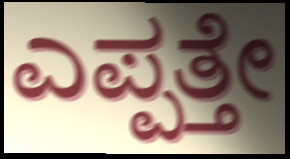
ಎಪ್ಪತ್ತೇ